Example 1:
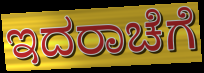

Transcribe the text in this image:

ಇದರಾಚೆಗೆ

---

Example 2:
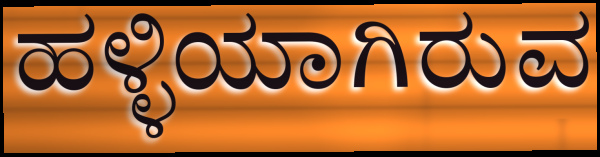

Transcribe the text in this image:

ಹಳ್ಳಿಯಾಗಿರುವ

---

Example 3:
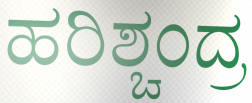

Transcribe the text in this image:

ಹರಿಶ್ಚಂದ್ರ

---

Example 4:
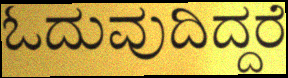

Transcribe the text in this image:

ಓದುವುದಿದ್ದರೆ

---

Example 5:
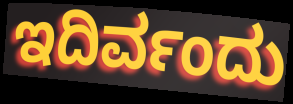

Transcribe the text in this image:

ಇದಿರ್ವಂದು